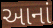
આનાં